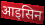
आइसिन